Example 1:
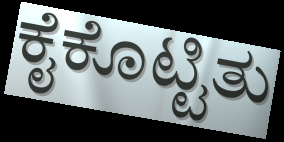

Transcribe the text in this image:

ಕೈಕೊಟ್ಟಿತು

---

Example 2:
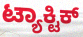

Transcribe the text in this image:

ಟ್ಯಾಕ್ಟಿಕ್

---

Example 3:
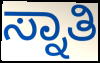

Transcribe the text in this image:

ಸ್ನಾತಿ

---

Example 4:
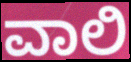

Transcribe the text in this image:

ವಾಲಿ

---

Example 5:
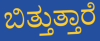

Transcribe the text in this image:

ಬಿತ್ತುತ್ತಾರೆ